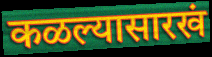
कळल्यासारखं